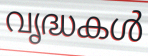
വൃദ്ധകൾ